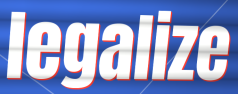
legalize